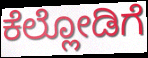
ಕೆಲ್ಲೋಡಿಗೆ